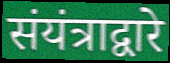
संयंत्राद्वारे